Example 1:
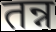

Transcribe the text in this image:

तन्न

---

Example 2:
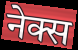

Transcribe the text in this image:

नेक्स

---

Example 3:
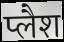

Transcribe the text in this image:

प्लैश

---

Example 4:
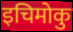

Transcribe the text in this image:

इचिमोकु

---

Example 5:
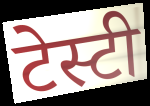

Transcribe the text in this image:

टेस्टी